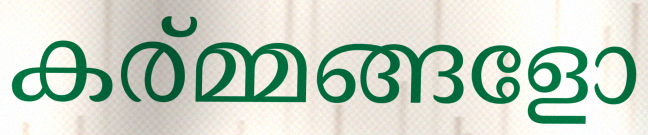
കര്മ്മങ്ങളോ